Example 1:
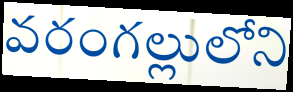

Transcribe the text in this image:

వరంగల్లులోని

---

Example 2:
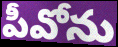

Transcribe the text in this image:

పీవోను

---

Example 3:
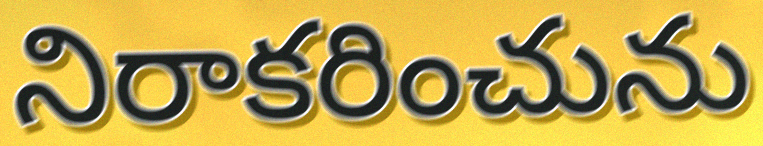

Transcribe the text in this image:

నిరాకరించును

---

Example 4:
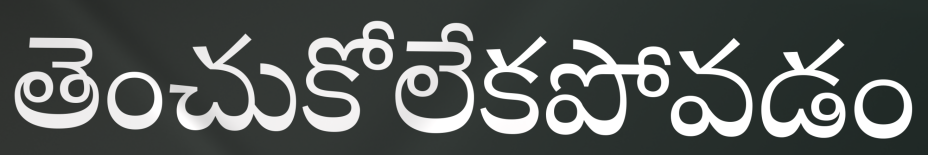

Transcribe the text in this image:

తెంచుకోలేకపోవడం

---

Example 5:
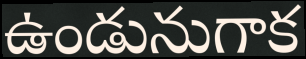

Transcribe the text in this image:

ఉండునుగాక